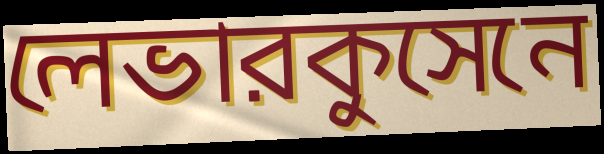
লেভারকুসেনে